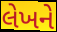
લેખને